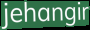
jehangir